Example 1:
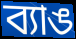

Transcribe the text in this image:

ব্যাঙ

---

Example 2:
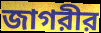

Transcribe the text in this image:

জাগরীর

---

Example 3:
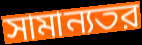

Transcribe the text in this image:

সামান্যতর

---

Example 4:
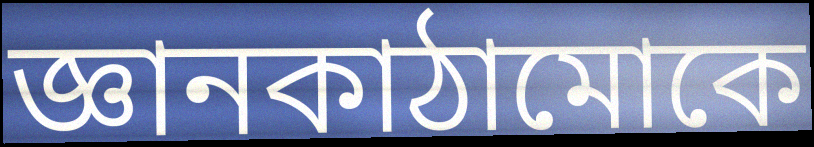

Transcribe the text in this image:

জ্ঞানকাঠামোকে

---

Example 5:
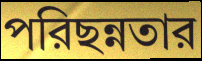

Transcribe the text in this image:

পরিছন্নতার